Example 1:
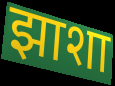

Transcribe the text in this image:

झाशा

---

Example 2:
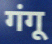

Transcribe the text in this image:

गंगू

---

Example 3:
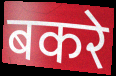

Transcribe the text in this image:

बकरे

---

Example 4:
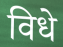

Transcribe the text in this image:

विधे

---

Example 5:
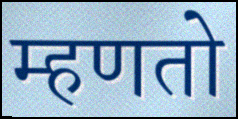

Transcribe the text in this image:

म्हणतो